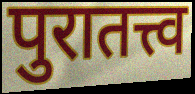
पुरातत्त्व